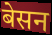
बेसन